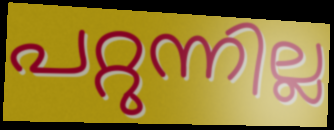
പറ്റുന്നില്ല